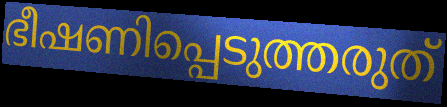
ഭീഷണിപ്പെടുത്തരുത്